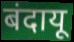
बंदायू